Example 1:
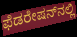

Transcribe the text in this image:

ಫೆಡರೇಷನ್‌ನಲ್ಲಿ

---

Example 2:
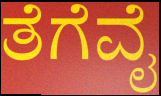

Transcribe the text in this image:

ತೆಗೆವೈ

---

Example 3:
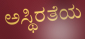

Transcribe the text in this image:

ಅಸ್ಥಿರತೆಯ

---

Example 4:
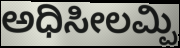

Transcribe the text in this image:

ಅಧಿಸೀಲಮ್ಪಿ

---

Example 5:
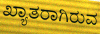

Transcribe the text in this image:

ಖ್ಯಾತರಾಗಿರುವ